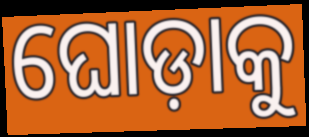
ଘୋଡ଼ାକୁ